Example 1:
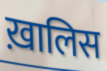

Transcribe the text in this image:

ख़ालिस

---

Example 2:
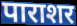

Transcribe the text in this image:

पाराशर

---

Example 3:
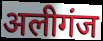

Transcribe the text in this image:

अलीगंज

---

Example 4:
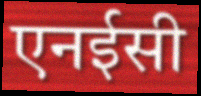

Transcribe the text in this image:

एनईसी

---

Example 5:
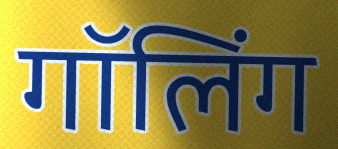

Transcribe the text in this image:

गॉलिंग